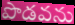
పొడవను